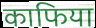
काफिया